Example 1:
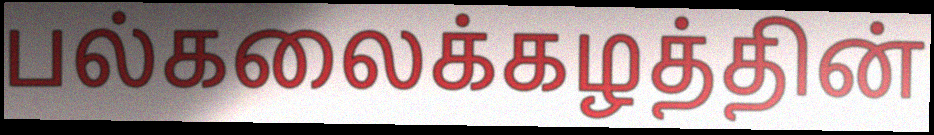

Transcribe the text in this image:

பல்கலைக்கழத்தின்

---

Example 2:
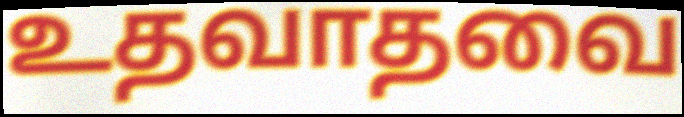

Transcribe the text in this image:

உதவாதவை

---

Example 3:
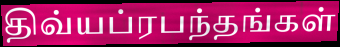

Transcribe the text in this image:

திவ்யப்ரபந்தங்கள்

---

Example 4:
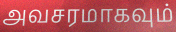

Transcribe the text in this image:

அவசரமாகவும்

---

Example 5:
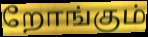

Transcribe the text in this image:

றோங்கும்